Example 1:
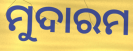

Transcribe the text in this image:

ମୁଦାରମ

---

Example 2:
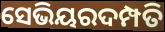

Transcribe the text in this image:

ସେଭିୟରଦମ୍ପତି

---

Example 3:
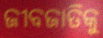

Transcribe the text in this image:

ଜୀବଜାତିକୁ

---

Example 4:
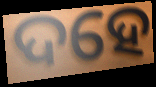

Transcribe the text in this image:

ଦହେ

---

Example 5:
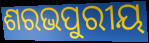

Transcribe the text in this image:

ଶରଭପୁରୀୟ